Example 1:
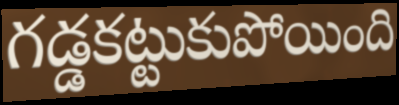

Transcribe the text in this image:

గడ్డకట్టుకుపోయింది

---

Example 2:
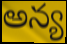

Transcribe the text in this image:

అన్య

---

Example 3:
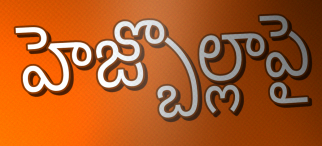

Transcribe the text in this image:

హెజ్బొల్లాపై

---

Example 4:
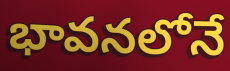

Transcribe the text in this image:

భావనలోనే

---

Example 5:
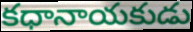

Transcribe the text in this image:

కధానాయకుడు